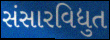
સંસારવિદ્યુત